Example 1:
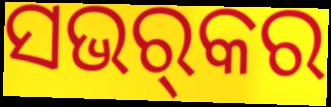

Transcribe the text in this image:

ସଭର୍‌କର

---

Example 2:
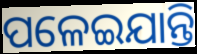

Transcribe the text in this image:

ପଳେଇଯାନ୍ତି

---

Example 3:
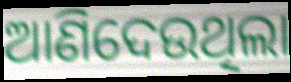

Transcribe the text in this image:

ଆଣିଦେଉଥିଲା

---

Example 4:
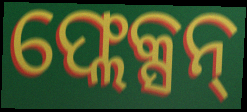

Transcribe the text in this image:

ଫ୍ଲେକ୍ସନ୍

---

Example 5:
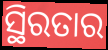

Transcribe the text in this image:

ସ୍ଥିରତାର